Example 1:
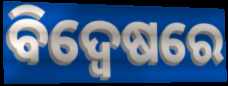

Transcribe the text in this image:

ବିଦ୍ୱେଷରେ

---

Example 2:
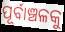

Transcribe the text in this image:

ପୂର୍ବାଞ୍ଚଳକୁ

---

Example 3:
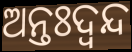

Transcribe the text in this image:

ଅନ୍ତଃଦ୍ବନ୍ଦ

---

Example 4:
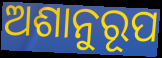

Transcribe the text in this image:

ଅଶାନୁରୂପ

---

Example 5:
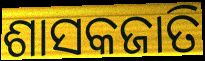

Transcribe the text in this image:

ଶାସକଜାତି